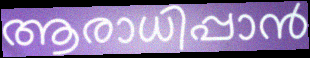
ആരാധിപ്പാൻ